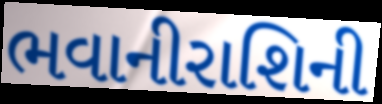
ભવાનીરાશિની